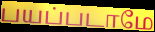
பயப்படாமே